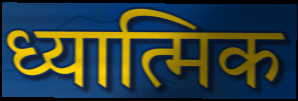
ध्यात्मिक